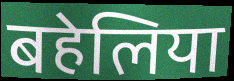
बहेलिया